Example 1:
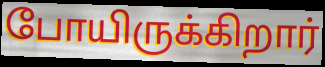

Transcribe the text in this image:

போயிருக்கிறார்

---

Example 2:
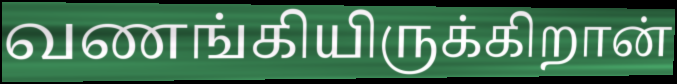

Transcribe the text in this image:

வணங்கியிருக்கிறான்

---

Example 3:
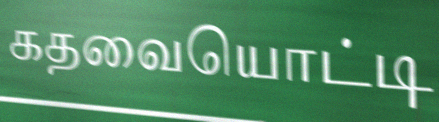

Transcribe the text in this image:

கதவையொட்டி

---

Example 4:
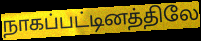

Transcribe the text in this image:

நாகப்பட்டினத்திலே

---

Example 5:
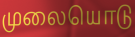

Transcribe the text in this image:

முலையொடு